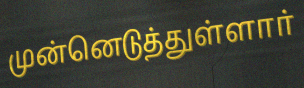
முன்னெடுத்துள்ளார்